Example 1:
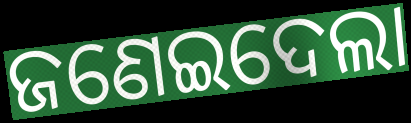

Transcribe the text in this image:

ଜଣେଇଦେଲା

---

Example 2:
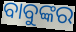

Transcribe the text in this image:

ବାବୁଙ୍କର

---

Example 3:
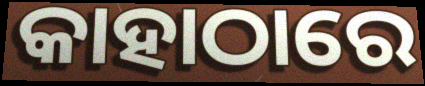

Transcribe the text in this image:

କାହାଠାରେ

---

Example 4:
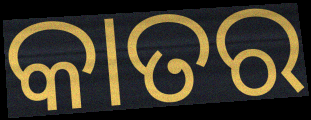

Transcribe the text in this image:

କାତର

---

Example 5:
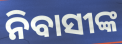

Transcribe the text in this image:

ନିବାସୀଙ୍କ